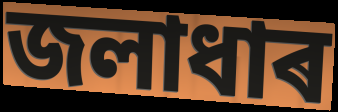
জলাধাৰ